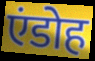
एंडोह